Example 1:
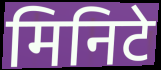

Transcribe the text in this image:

मिनिटे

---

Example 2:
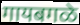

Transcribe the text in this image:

गायबगळे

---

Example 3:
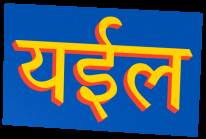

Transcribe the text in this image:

यईल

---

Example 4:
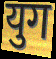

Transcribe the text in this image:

युग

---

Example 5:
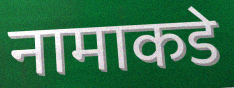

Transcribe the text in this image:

नामाकडे